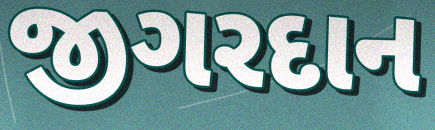
જીગરદાન